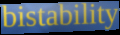
bistability